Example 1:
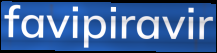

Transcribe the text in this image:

favipiravir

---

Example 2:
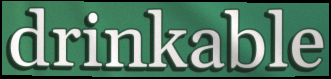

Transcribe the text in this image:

drinkable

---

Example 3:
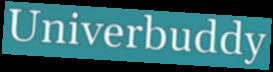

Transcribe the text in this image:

Univerbuddy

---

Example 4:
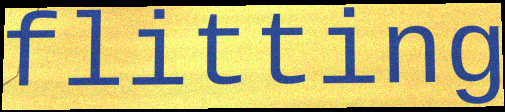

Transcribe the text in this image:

flitting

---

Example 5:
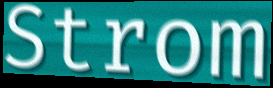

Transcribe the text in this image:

Strom